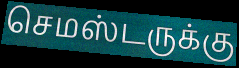
செமஸ்டருக்கு